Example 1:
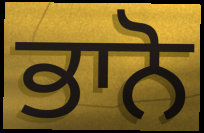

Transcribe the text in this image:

ਭਾਨੋ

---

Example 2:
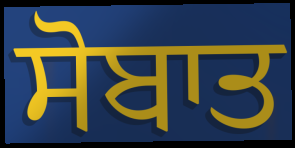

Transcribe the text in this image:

ਸੋਬਾਤ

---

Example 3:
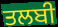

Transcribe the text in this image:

ਤਲਬੀ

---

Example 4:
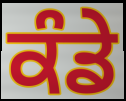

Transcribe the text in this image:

ਕੰਡੇ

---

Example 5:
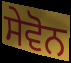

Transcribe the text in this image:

ਸੇਵੋਨ